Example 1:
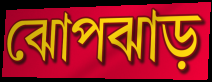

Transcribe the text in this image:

ঝোপঝাড়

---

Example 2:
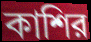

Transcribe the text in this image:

কাশির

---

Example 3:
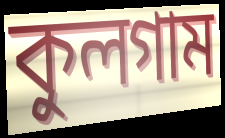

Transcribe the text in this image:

কুলগাম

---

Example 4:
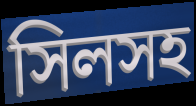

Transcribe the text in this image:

সিলসহ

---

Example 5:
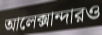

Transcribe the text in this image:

আলেক্সান্দারও